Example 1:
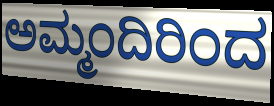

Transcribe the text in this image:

ಅಮ್ಮಂದಿರಿಂದ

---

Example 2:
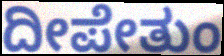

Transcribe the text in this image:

ದೀಪೇತುಂ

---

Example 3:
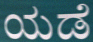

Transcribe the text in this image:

ಯಡೆ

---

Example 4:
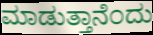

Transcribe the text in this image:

ಮಾಡುತ್ತಾನೆಂದು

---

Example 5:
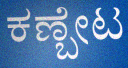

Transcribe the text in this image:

ಕಣ್ಬೇಟ